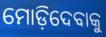
ମୋଡ଼ିଦେବାକୁ